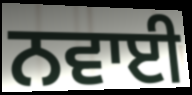
ਨਵਾਈ